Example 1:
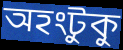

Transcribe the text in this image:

অহংটুকু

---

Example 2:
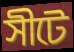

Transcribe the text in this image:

সীটে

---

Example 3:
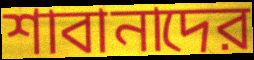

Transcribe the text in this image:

শাবানাদের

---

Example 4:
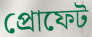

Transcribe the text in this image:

প্রোফেট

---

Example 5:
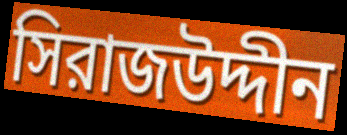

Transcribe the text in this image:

সিরাজউদ্দীন